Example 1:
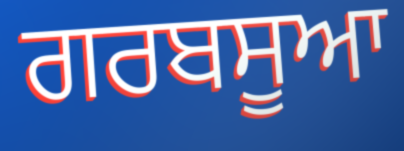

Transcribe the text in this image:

ਗਰਬਸੂਆ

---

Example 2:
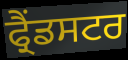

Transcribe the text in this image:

ਫ੍ਰੈਂਡਸਟਰ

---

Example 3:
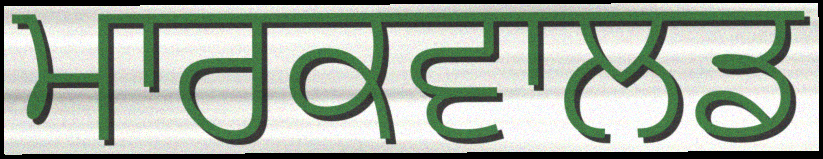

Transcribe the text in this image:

ਮਾਰਕਵਾਲਡ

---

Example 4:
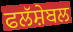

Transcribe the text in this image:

ਫਲੱਸ਼ੇਬਲ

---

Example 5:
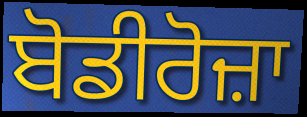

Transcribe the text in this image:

ਬੋਡੀਰੋਜ਼ਾ